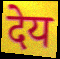
देय